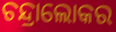
ଚନ୍ଦ୍ରାଲୋକର